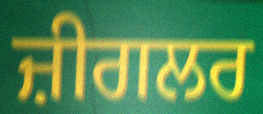
ਜ਼ੀਗਲਰ